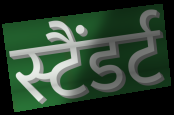
स्टैंडर्ट